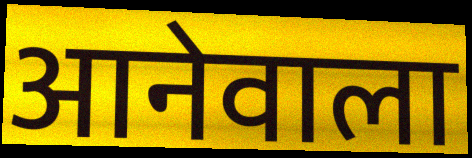
आनेवाला